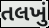
તલખું